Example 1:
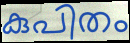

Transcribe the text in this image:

കുപിതം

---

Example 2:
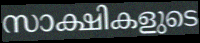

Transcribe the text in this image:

സാക്ഷികളുടെ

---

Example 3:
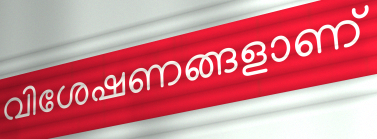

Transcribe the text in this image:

വിശേഷണങ്ങളാണ്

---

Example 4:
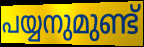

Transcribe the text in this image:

പയ്യനുമുണ്ട്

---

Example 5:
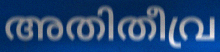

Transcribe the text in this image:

അതിതീവ്ര